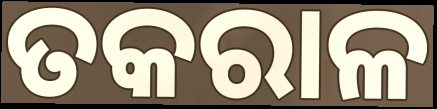
ତକରାଳ